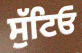
ਸੁੱਟਿਓ